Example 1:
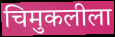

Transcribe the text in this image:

चिमुकलीला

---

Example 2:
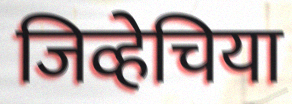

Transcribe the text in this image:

जिव्हेचिया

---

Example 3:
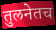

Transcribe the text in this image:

तुलनेतच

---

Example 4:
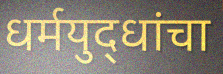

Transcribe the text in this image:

धर्मयुद्धांचा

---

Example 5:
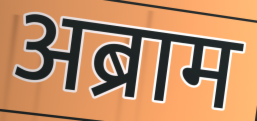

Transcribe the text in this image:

अब्राम